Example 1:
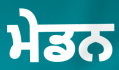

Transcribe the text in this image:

ਮੇਡਨ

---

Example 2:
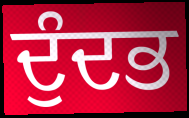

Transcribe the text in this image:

ਦੁੰਦਭ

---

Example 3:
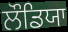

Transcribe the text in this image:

ਲੌਡਿਯਾ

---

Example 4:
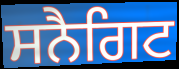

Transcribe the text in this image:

ਸਨੈਗਿਟ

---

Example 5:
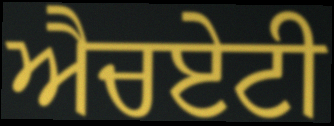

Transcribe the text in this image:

ਐਚਏਟੀ